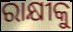
ରାକ୍ଷୀକୁ